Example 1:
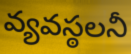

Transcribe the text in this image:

వ్యవస్ఠలనీ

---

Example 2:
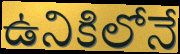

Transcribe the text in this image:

ఉనికిలోనే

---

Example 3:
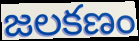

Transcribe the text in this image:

జలకణం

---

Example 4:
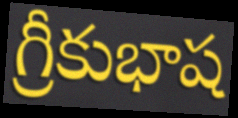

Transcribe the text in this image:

గ్రీకుభాష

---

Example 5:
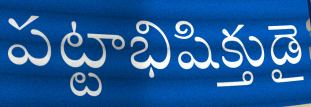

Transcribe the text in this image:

పట్టాభిషిక్తుడై